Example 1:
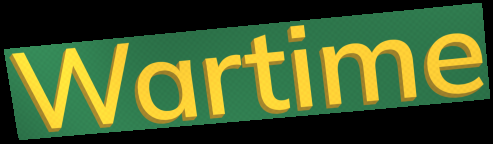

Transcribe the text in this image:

Wartime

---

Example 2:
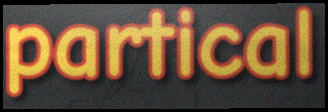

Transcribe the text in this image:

partical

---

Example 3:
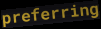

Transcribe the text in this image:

preferring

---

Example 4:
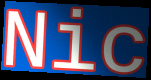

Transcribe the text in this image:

Nic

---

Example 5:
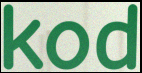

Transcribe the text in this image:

kod